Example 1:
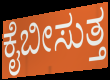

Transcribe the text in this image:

ಕೈಬೀಸುತ್ತ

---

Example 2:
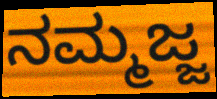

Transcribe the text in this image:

ನಮ್ಮಜ್ಜ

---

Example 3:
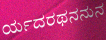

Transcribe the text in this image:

ರ್ಯದರಥನನುನ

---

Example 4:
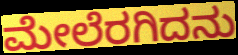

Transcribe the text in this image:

ಮೇಲೆರಗಿದನು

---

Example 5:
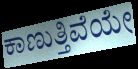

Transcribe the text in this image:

ಕಾಣುತ್ತಿವೆಯೇ